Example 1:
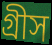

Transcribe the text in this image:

গ্রীস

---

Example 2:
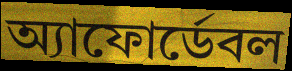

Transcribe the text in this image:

অ্যাফোর্ডেবল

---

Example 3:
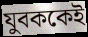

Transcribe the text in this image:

যুবককেই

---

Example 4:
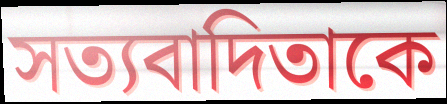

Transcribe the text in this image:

সত্যবাদিতাকে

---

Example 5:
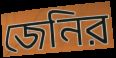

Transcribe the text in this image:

জেনির